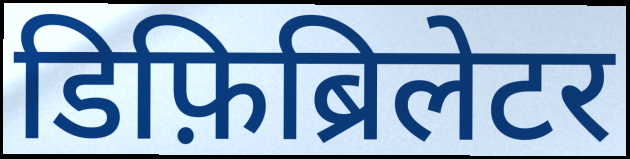
डिफ़िब्रिलेटर